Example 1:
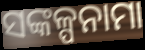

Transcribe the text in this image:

ସଙ୍କଳ୍ପନାମା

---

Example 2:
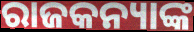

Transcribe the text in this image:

ରାଜକନ୍ୟାଙ୍କ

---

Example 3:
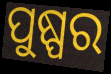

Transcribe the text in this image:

ପୁଷ୍ପର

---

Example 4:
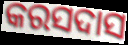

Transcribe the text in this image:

କରସଦାସ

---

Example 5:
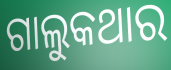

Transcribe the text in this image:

ଗାଲୁକଥାର